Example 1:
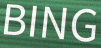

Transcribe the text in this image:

BING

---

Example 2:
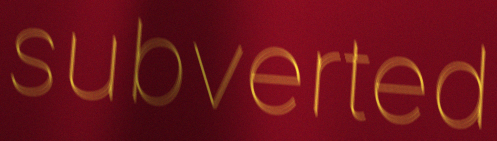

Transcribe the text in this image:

subverted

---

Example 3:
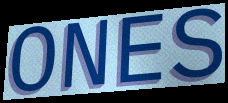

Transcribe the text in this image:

ONES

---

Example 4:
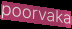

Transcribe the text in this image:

poorvaka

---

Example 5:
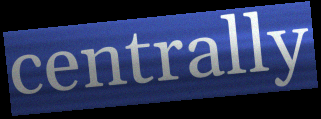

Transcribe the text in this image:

centrally